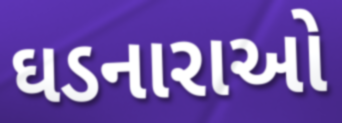
ઘડનારાઓ